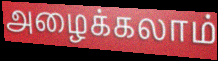
அழைக்கலாம்